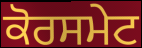
ਕੋਰਸਮੇਟ